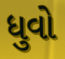
ધુવો